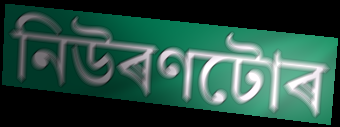
নিউৰণটোৰ